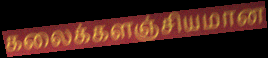
கலைக்களஞ்சியமான